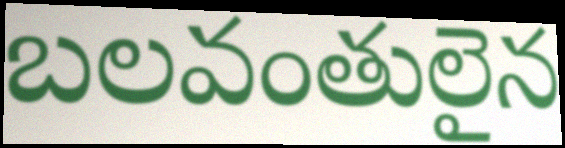
బలవంతులైన